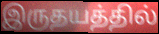
இருதயத்தில்